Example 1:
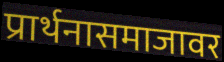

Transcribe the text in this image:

प्रार्थनासमाजावर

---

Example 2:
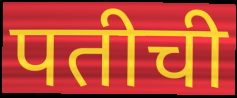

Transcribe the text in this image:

पतीची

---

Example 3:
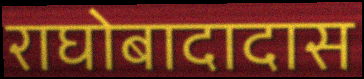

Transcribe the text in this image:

राघोबादादास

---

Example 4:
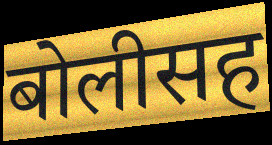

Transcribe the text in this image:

बोलीसह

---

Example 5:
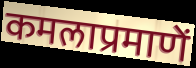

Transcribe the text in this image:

कमलाप्रमाणें